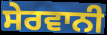
ਸੇਰਵਾਨੀ